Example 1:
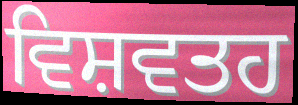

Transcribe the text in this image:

ਵਿਸ਼ਵਤਹ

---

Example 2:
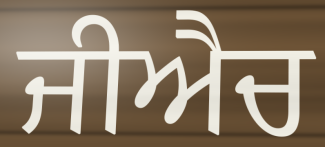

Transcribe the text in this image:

ਜੀਐਚ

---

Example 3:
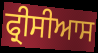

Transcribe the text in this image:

ਫ੍ਰੀਸੀਆਸ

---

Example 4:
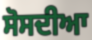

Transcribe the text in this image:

ਸੋਸਦੀਆ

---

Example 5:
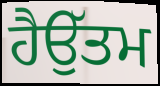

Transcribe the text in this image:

ਹੈਉੱਤਮ